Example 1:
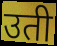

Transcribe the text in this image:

उती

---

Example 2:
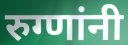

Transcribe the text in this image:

रुग्णांनी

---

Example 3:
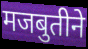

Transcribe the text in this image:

मजबुतीने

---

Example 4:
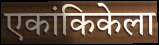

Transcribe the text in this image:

एकांकिकेला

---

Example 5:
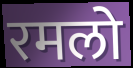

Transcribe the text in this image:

रमलो